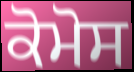
ਕੋਮੋਸ